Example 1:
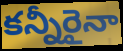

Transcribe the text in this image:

కన్నీరైనా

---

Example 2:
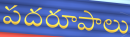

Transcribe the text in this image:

పదరూపాలు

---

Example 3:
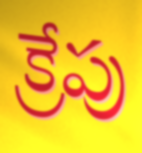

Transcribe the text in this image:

క్రేపు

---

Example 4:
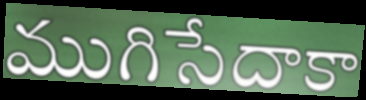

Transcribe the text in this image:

ముగిసేదాకా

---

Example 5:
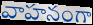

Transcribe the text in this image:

వాహనంగా